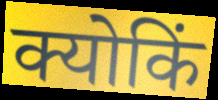
क्योकिं